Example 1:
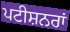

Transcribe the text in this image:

ਪਟੀਸ਼ਨਰਾਂ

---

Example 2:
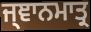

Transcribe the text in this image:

ਜ੍ਞਾਨਮਾਤ੍ਰ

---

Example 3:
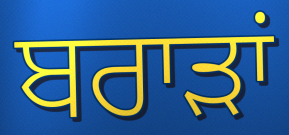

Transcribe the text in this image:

ਬਰਾੜਾਂ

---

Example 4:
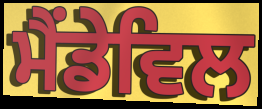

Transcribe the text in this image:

ਮੈਂਡੇਵਿਲ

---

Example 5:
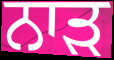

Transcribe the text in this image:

ਨਾੜ